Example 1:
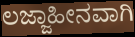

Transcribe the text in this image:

ಲಜ್ಜಾಹೀನವಾಗಿ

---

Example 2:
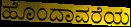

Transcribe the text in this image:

ಹೊಂದಾವರೆಯ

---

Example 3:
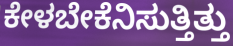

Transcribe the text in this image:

ಕೇಳಬೇಕೆನಿಸುತ್ತಿತ್ತು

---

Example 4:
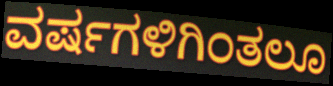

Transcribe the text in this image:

ವರ್ಷಗಳಿಗಿಂತಲೂ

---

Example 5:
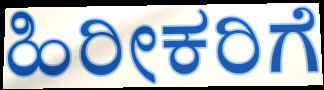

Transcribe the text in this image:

ಹಿರೀಕರಿಗೆ